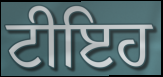
ਟੀਇਹ